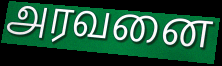
அரவனை